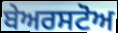
ਬੇਅਰਸਟੋਅ